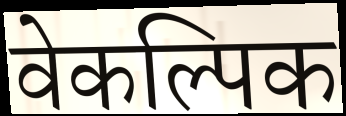
वेकल्पिक